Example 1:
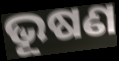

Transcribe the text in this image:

ଭୂଷଣ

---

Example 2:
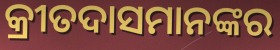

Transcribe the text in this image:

କ୍ରୀତଦାସମାନଙ୍କର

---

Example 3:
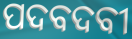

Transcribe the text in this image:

ପଦବଦବୀ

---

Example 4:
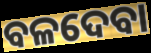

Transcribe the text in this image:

ବଳଦେବା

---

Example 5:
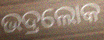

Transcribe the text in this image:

ଭଦ୍ରଲୋକ